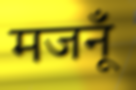
मजनूँ